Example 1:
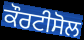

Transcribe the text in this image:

ਕੌਰਟੀਸੋਲ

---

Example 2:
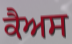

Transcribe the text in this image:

ਕੈਅਸ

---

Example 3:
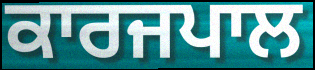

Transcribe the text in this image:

ਕਾਰਜਪਾਲ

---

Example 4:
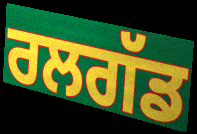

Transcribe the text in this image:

ਰਲਗੱਡ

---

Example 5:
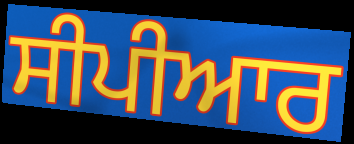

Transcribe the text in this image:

ਸੀਪੀਆਰ